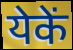
येकें